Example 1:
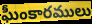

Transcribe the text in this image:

ఘీంకారములు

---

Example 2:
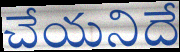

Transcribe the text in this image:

చేయనిదే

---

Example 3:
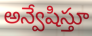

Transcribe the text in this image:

అన్వేషిస్తూ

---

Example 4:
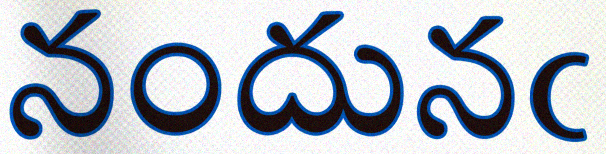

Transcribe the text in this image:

నందునఁ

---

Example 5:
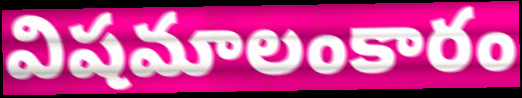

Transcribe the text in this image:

విషమాలంకారం